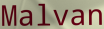
Malvan